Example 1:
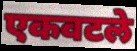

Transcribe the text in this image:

एकवटले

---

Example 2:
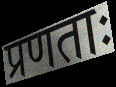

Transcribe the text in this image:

प्रणताः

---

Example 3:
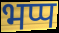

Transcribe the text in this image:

भप्प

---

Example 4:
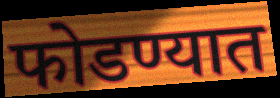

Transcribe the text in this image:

फोडण्यात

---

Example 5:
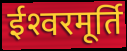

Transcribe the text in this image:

ईश्वरमूर्ति